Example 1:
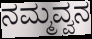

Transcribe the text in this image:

ನಮ್ಮವ್ವನ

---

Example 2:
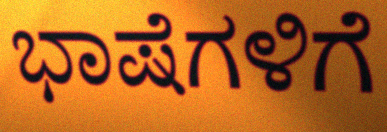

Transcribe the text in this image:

ಭಾಷೆಗಳಿಗೆ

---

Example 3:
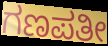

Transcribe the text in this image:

ಗಣಪತೀ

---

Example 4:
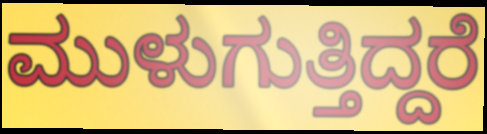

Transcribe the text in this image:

ಮುಳುಗುತ್ತಿದ್ದರೆ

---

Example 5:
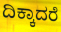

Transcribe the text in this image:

ದಿಕ್ಕಾದರೆ